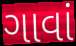
ગાવાં